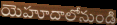
యెహూదాలోనుండి